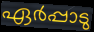
ഏർപ്പാടു